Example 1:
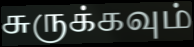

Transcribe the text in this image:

சுருக்கவும்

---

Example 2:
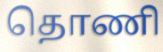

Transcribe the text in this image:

தொணி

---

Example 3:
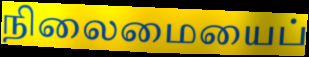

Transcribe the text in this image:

நிலைமையைப்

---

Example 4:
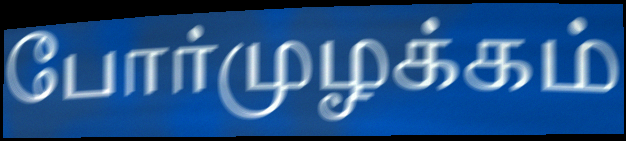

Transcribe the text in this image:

போர்முழக்கம்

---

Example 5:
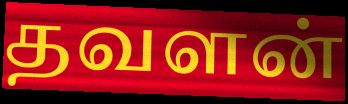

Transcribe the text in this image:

தவளன்